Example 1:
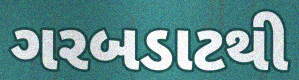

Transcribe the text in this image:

ગરબડાટથી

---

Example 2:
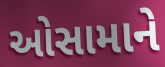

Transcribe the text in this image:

ઓસામાને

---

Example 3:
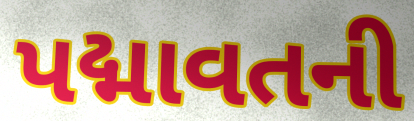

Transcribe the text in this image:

પદ્માવતની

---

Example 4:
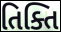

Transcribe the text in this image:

તિક્તિ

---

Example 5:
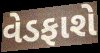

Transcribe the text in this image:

વેડફાશે